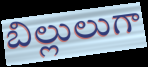
బిల్లులుగా